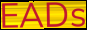
EADs